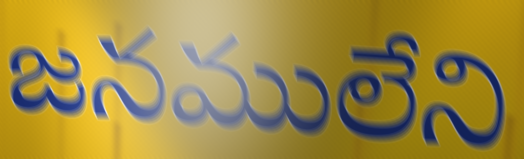
జనములేని